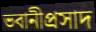
ভবানীপ্রসাদ